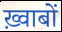
ख़्वाबों